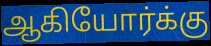
ஆகியோர்க்கு